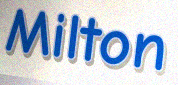
Milton